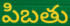
పిబతు